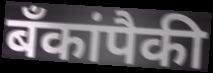
बँकांपैकी